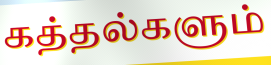
கத்தல்களும்